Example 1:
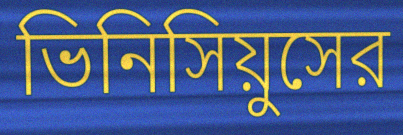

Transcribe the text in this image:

ভিনিসিয়ুসের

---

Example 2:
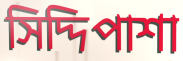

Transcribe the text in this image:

সিদ্দিপাশা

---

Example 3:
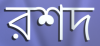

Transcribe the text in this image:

রশদ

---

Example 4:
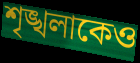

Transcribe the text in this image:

শৃঙ্খলাকেও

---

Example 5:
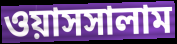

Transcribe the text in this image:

ওয়াসসালাম